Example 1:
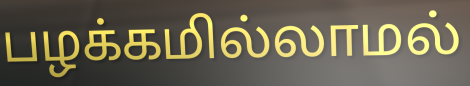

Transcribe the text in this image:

பழக்கமில்லாமல்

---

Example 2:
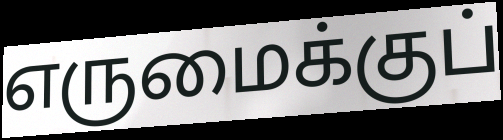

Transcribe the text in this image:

எருமைக்குப்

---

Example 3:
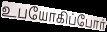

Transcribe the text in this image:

உபயோகிப்போர்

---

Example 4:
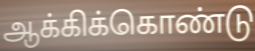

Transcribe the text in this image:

ஆக்கிக்கொண்டு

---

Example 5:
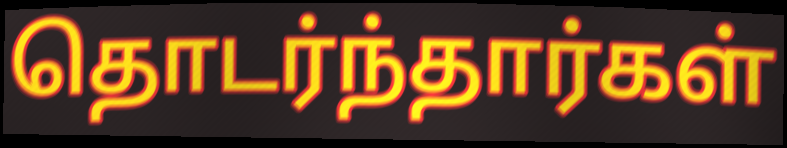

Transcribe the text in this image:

தொடர்ந்தார்கள்